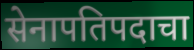
सेनापतिपदाचा